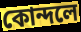
কোন্দলে